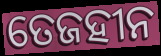
ତେଜହୀନ